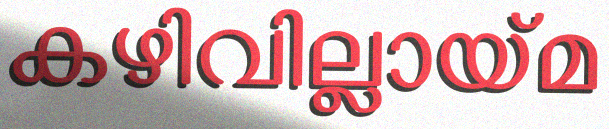
കഴിവില്ലായ്മ